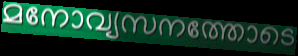
മനോവ്യസനത്തോടെ